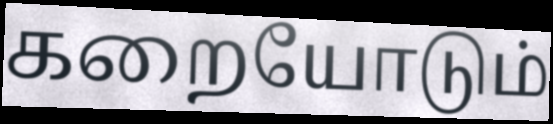
கறையோடும்